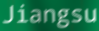
Jiangsu